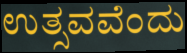
ಉತ್ಸವವೆಂದು